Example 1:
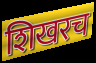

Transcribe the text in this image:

शिखरच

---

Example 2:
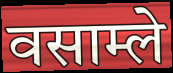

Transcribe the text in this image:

वसाम्ले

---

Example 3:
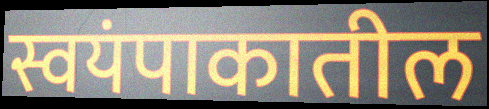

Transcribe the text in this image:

स्वयंपाकातील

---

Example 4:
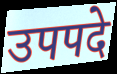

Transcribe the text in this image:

उपपदे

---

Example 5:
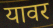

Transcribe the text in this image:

यावर